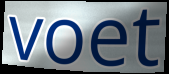
voet